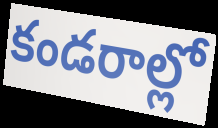
కండరాల్లో